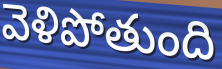
వెళిపోతుంది